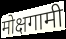
मोक्षगामी